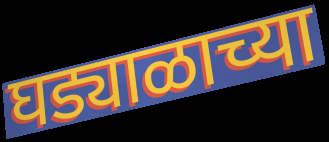
घड्याळाच्या